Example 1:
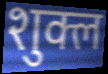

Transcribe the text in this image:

शुक्ल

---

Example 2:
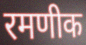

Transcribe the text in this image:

रमणीक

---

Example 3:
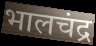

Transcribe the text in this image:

भालचंद्र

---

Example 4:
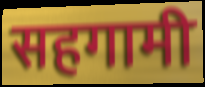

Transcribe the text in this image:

सहगामी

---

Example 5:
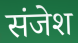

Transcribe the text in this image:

संजेश